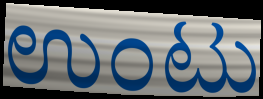
ಉಂಟು